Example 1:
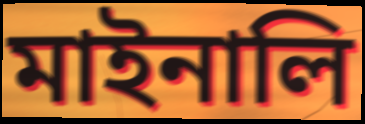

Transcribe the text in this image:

মাইনালি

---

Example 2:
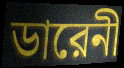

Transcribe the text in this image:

ডারেনী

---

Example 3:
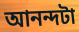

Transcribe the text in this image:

আনন্দটা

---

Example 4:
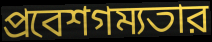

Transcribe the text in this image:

প্রবেশগম্যতার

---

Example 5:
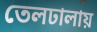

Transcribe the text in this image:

তেলঢালায়